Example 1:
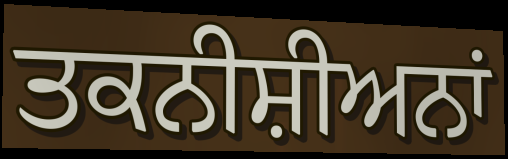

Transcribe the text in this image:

ਤਕਨੀਸ਼ੀਅਨਾਂ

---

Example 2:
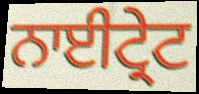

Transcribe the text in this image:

ਨਾਈਟ੍ਰੇਟ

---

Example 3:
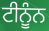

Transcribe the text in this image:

ਟੀਨੂੰਨ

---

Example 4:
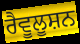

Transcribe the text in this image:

ਰੈਵੂਲੂਸ਼ਨ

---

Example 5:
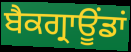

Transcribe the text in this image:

ਬੈਕਗ੍ਰਾਊਂਡਾਂ